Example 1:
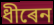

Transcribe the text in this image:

ধীৰেন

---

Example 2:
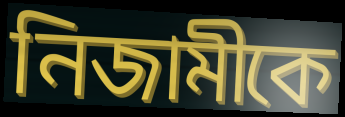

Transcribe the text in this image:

নিজামীকে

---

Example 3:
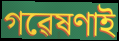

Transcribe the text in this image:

গৱেষণাই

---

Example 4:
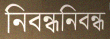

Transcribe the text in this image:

নিবন্ধনিবন্ধ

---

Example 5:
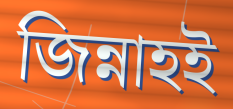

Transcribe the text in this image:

জিন্নাহই